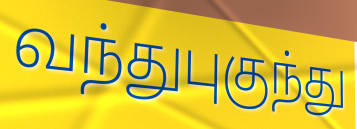
வந்துபுகுந்து